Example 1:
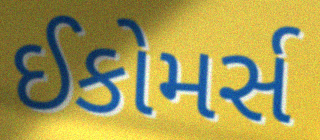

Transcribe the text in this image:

ઈકોમર્સ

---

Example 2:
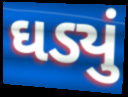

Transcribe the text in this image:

ઘડ્યું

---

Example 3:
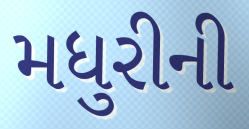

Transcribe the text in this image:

મધુરીની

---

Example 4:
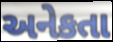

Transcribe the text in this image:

અનેકતા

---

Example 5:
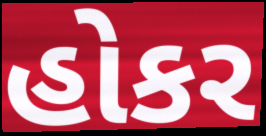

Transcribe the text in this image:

હોકર